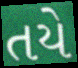
તયે